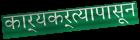
कार्यकर्त्यापासून